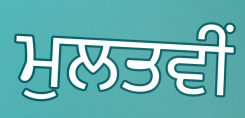
ਮੁਲਤਵੀਂ